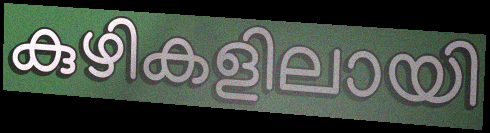
കുഴികളിലായി